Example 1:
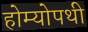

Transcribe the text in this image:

होम्योपथी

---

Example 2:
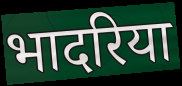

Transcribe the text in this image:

भादरिया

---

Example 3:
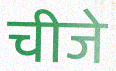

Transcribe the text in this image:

चीजे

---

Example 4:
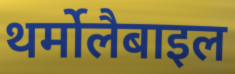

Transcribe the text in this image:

थर्मोलैबाइल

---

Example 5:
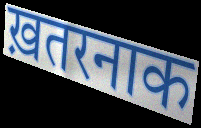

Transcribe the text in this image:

ख़तरनाक